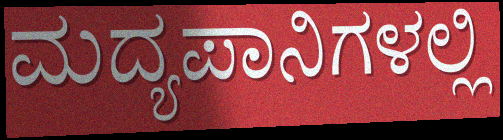
ಮದ್ಯಪಾನಿಗಳಲ್ಲಿ